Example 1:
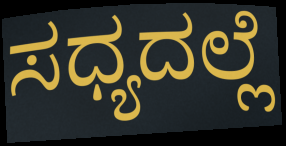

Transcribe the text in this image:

ಸಧ್ಯದಲ್ಲೆ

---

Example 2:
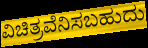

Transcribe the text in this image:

ವಿಚಿತ್ರವೆನಿಸಬಹುದು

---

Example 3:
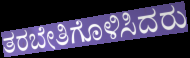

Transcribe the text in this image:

ತರಬೇತಿಗೊಳಿಸಿದರು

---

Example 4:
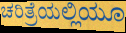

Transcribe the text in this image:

ಚರಿತ್ರೆಯಲ್ಲಿಯೂ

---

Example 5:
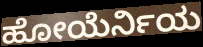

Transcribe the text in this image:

ಹೋಯೆರ್ನಿಯ